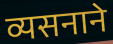
व्यसनाने